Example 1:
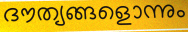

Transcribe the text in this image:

ദൗത്യങ്ങളൊന്നും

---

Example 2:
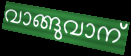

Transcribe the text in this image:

വാങ്ങുവാന്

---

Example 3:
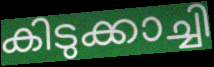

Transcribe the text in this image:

കിടുക്കാച്ചി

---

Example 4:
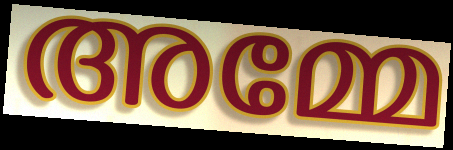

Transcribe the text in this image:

അമ്മേ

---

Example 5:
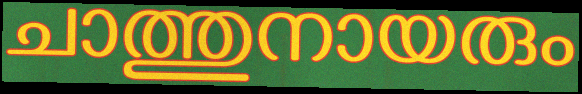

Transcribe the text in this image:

ചാത്തുനായരും